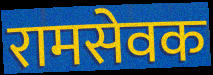
रामसेवक